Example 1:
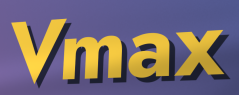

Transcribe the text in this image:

Vmax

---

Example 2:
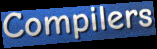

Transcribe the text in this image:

Compilers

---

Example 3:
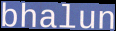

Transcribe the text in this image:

bhalun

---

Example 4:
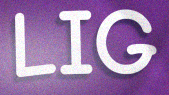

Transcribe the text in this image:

LIG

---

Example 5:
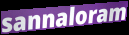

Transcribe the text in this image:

sannaloram